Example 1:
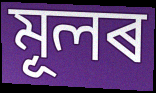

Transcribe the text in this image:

মূলৰ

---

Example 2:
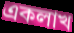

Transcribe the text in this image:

একলাখ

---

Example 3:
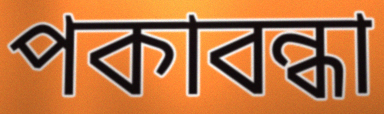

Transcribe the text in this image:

পকাবন্ধা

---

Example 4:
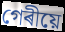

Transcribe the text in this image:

গেৰীয়ে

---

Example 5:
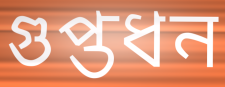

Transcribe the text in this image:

গুপ্তধন